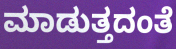
ಮಾಡುತ್ತದಂತೆ